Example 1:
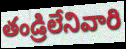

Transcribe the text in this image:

తండ్రిలేనివారి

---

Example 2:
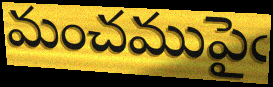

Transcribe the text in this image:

మంచముపైఁ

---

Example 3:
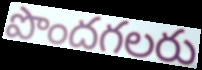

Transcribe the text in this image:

పొందగలరు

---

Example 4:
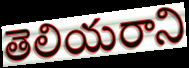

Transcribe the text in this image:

తెలియరాని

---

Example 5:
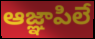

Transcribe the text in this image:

ఆజ్ఞాపిలే